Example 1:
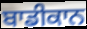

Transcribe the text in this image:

ਬਾਡੀਕਾਨ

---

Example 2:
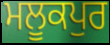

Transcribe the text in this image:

ਮਲੂਕਪੁਰ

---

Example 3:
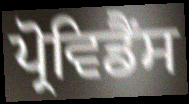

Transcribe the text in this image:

ਪ੍ਰੋਵਿਡੈਂਸ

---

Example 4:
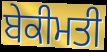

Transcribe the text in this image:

ਬੇਕੀਮਤੀ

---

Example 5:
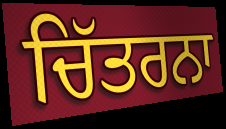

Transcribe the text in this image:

ਚਿੱਤਰਨਾ